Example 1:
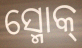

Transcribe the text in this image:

ସ୍ମୋକ୍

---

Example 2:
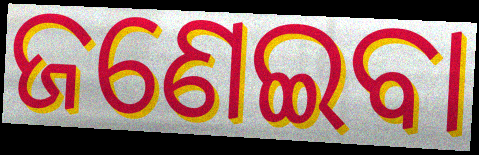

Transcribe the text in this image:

ଜଣେଇବା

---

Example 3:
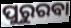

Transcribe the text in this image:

ପୁରୁରବା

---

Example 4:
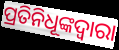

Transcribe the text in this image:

ପ୍ରତିନିଧୂଙ୍କଦ୍ଵାରା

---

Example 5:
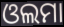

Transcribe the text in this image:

ଓଲମା